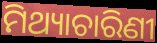
ମିଥ୍ୟାଚାରିଣୀ